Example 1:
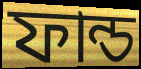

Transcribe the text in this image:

ফান্ড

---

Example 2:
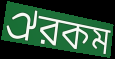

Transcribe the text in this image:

ঐরকম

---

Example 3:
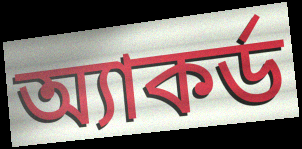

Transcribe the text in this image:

অ্যাকর্ড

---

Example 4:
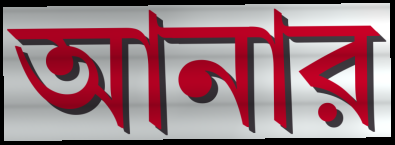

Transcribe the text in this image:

আনার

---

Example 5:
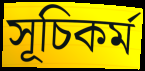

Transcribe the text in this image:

সূচিকর্ম